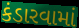
કંડારવામાં